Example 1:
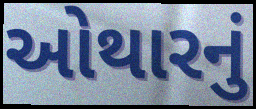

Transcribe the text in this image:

ઓથારનું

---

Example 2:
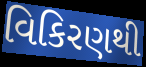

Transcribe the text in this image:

વિકિરણથી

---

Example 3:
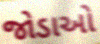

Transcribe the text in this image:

જોડાઓ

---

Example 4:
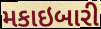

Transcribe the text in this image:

મકાઇબારી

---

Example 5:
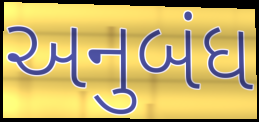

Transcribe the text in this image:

અનુબંધ